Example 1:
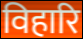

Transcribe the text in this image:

विहारि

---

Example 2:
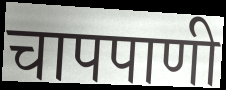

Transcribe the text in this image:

चापपाणी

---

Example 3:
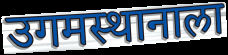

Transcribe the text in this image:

उगमस्थानाला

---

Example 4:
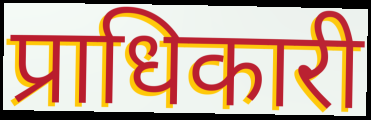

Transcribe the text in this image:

प्राधिकारी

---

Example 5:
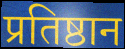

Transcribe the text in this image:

प्रतिष्ठान